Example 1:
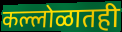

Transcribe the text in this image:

कल्लोळातही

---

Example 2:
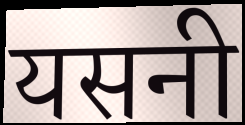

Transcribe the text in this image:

यसनी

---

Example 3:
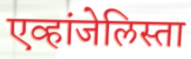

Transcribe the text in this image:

एव्हांजेलिस्ता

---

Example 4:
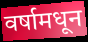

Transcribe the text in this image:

वर्षामधून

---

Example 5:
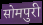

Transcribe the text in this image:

सोमपुरी